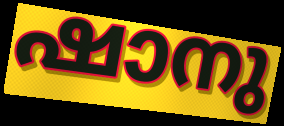
ഷാനു